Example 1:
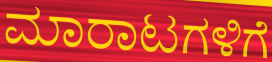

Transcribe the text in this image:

ಮಾರಾಟಗಳಿಗೆ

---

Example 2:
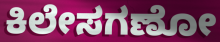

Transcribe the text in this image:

ಕಿಲೇಸಗಣೋ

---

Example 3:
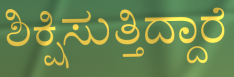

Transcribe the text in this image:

ಶಿಕ್ಷಿಸುತ್ತಿದ್ದಾರೆ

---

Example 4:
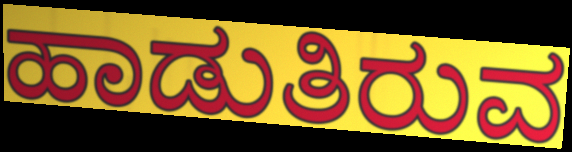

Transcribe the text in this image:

ಹಾಡುತಿರುವ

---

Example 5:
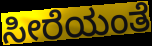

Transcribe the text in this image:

ಸೀರೆಯಂತೆ